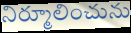
నిర్మూలించును